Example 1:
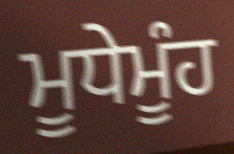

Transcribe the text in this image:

ਮੂਧੇਮੂੰਹ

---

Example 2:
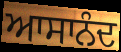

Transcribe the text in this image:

ਆਸਾਨੰਦ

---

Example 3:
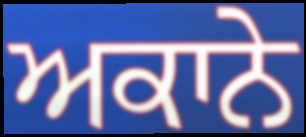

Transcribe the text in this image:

ਅਕਾਨੇ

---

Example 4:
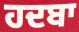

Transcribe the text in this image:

ਹਦਬਾ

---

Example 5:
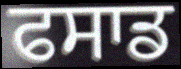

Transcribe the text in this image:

ਫਸਾਡ